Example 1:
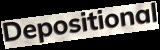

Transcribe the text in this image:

Depositional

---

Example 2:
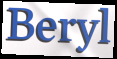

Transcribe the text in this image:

Beryl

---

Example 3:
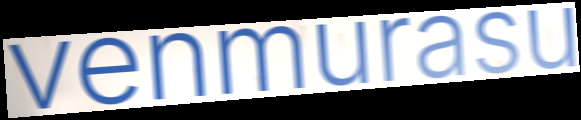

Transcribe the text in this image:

venmurasu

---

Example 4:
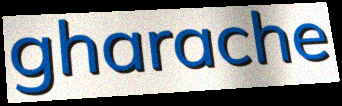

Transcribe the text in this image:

gharache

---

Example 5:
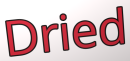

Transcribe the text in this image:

Dried